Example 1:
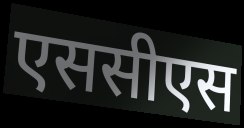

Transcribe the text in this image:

एससीएस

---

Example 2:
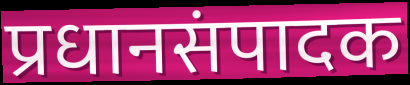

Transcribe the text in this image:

प्रधानसंपादक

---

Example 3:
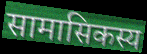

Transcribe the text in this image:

सामासिकस्य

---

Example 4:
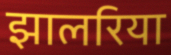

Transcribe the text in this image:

झालरिया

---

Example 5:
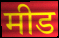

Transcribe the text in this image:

मीड